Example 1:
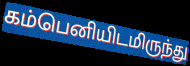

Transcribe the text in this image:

கம்பெனியிடமிருந்து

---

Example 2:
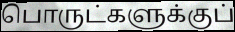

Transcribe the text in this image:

பொருட்களுக்குப்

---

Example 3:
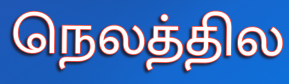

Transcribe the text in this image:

நெலத்தில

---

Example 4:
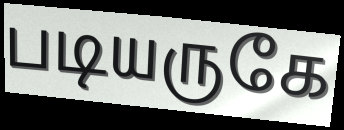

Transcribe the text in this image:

படியருகே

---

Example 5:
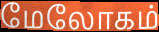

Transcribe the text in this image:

மேலோகம்